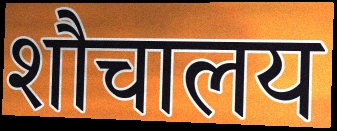
शौचालय